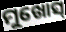
ମୁଖୋସ୍